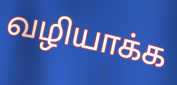
வழியாக்க